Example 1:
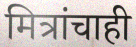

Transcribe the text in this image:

मित्रांचाही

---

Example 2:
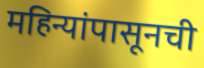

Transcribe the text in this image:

महिन्यांपासूनची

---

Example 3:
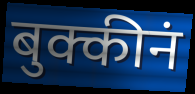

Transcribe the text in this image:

बुक्कीनं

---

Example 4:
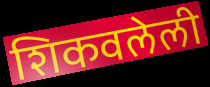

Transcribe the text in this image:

शिकवलेली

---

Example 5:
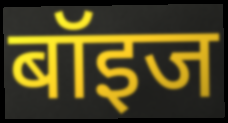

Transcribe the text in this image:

बॉइज